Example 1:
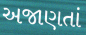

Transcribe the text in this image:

અજાણતાં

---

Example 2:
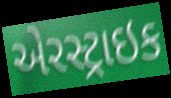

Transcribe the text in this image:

એરસ્ટ્રાઇક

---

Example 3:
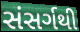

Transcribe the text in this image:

સંસર્ગથી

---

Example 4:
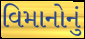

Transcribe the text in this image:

વિમાનોનું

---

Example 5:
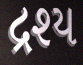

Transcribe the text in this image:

દ્રશ્ય